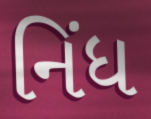
નિંધ